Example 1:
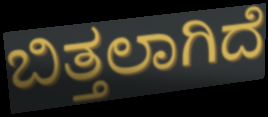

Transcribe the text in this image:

ಬಿತ್ತಲಾಗಿದೆ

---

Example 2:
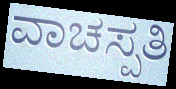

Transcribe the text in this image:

ವಾಚಸ್ಪತಿ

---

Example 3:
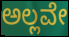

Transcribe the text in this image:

ಅಲ್ಲವೇ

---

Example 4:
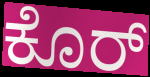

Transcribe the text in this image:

ಕೊರ್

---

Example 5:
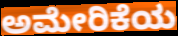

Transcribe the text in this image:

ಅಮೇರಿಕೆಯ